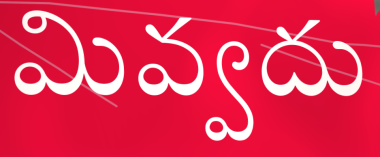
మివ్వదు